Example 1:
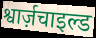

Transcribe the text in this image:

श्वार्ज़चाइल्ड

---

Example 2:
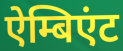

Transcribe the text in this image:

ऐम्बिएंट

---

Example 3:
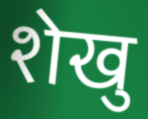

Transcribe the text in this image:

शेखु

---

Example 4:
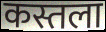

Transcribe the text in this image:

कस्तला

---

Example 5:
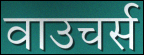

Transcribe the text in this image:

वाउचर्स